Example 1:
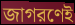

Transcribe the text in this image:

জাগরণেই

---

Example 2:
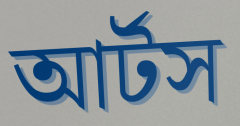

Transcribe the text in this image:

আর্টস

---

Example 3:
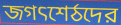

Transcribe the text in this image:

জগৎশেঠদের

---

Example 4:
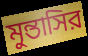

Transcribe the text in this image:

মুন্তাসির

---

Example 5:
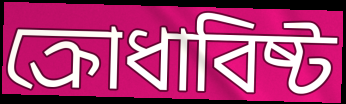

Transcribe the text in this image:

ক্রোধাবিষ্ট